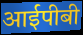
आईपीबी